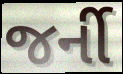
જર્ની